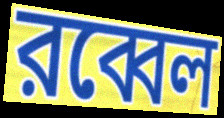
রব্বেল